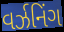
વર્ઝનિંગ